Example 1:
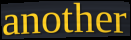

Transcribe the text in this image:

another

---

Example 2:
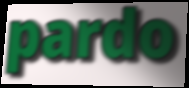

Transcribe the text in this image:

pardo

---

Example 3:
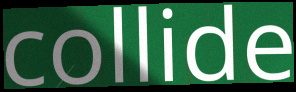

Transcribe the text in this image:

collide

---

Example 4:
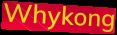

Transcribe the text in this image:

Whykong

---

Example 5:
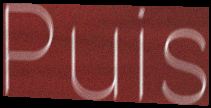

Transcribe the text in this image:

Puis